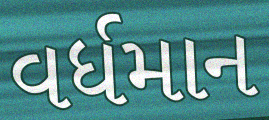
વર્ધમાન